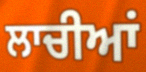
ਲਾਚੀਆਂ